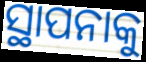
ସ୍ଥାପନାକୁ